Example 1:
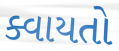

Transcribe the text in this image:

ક્વાયતો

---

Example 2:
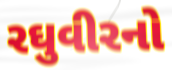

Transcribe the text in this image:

રઘુવીરનો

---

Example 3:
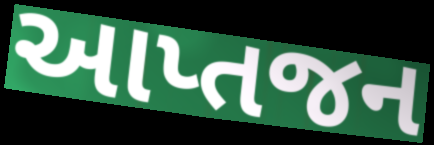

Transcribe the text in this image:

આપ્તજન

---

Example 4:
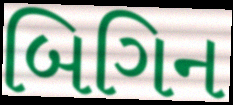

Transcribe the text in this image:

બિગિન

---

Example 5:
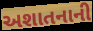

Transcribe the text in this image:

અશાતનાની